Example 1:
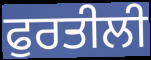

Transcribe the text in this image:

ਫੁਰਤੀਲੀ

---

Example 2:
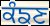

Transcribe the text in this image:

ਕੰਙਣ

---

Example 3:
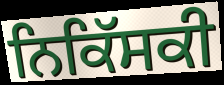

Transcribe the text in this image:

ਨਿਕਿੱਸਕੀ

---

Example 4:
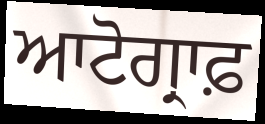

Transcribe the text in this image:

ਆਟੋਗ੍ਰਾਫ਼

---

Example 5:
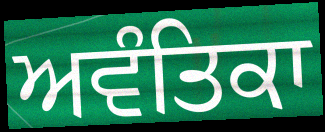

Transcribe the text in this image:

ਅਵੰਤਿਕਾ